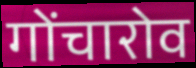
गोंचारोव